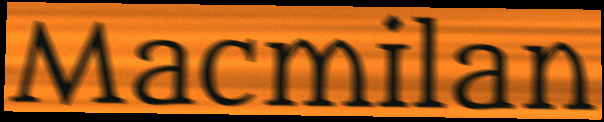
Macmilan